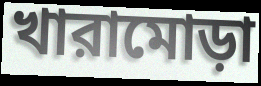
খারামোড়া